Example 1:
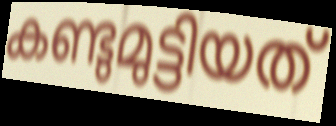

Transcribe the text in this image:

കണ്ടുമുട്ടിയത്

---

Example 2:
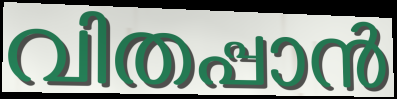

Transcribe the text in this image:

വിതപ്പാൻ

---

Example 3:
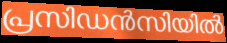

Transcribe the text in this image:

പ്രസിഡൻസിയിൽ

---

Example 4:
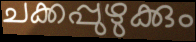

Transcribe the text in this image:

ചക്കപ്പുഴുക്കും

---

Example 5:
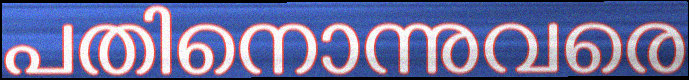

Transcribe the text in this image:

പതിനൊന്നുവരെ